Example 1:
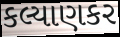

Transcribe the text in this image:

કલ્યાણકર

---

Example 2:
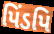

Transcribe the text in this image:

પિંડપિ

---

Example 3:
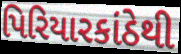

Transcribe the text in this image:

પિરિયારકાંઠેથી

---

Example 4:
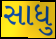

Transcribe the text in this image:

સાધુ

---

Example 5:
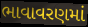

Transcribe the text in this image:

ભાવાવરણમાં